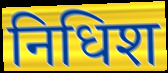
निधिश